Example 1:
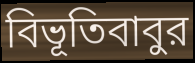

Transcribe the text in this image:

বিভূতিবাবুর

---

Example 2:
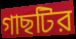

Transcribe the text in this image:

গাছটির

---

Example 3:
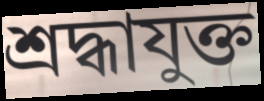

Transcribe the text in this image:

শ্রদ্ধাযুক্ত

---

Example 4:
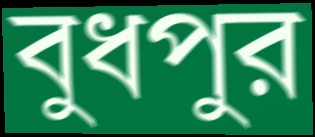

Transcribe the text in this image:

বুধপুর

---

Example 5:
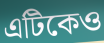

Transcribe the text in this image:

এটিকেও